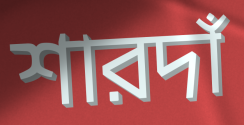
শারদাঁ